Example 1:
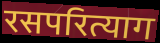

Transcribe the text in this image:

रसपरित्याग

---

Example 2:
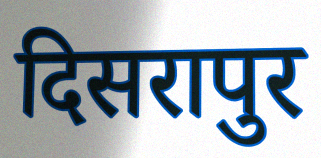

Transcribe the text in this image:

दिसरापुर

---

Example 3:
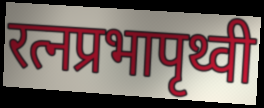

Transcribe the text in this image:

रत्नप्रभापृथ्वी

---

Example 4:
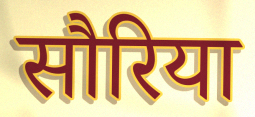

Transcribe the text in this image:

सौरिया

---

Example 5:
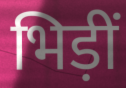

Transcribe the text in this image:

भिड़ीं